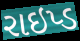
રાઇપ્ડ